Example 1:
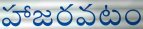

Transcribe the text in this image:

హాజరవటం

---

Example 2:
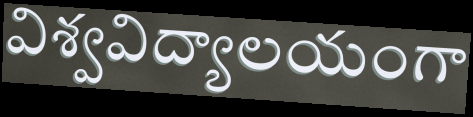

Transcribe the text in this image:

విశ్వవిద్యాలయంగా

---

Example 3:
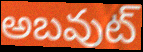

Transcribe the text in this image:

అబవుట్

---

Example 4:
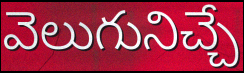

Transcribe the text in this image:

వెలుగునిచ్చే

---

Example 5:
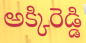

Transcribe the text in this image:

అక్కిరెడ్డి